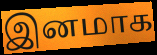
இனமாக